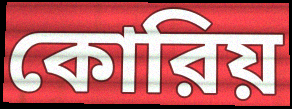
কোরিয়